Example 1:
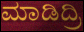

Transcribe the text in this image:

ಮಾಡಿದ್ರಿ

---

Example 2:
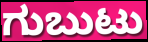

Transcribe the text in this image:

ಗುಬುಟು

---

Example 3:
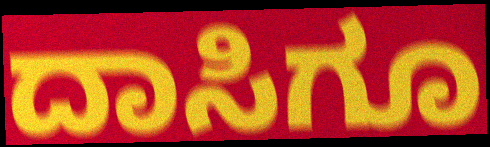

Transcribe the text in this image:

ದಾಸಿಗೂ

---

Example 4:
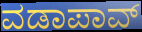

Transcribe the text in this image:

ವಡಾಪಾವ್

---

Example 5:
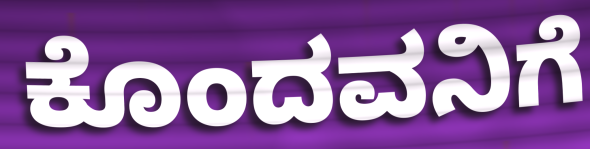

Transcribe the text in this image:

ಕೊಂದವನಿಗೆ